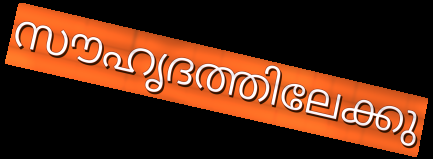
സൗഹൃദത്തിലേക്കു